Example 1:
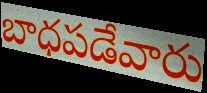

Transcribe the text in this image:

బాధపడేవారు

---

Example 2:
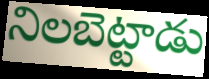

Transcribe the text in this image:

నిలబెట్టాడు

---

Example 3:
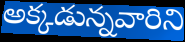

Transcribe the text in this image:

అక్కడున్నవారిని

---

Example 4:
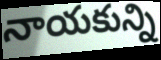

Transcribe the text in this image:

నాయకున్ని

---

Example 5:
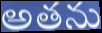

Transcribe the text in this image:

అతను